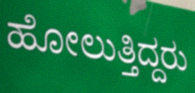
ಹೋಲುತ್ತಿದ್ದರು